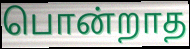
பொன்றாத